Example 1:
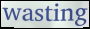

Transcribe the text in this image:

wasting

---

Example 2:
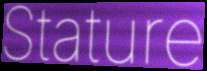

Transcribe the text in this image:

Stature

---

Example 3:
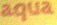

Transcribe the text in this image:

aqua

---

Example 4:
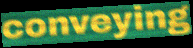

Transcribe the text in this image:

conveying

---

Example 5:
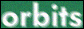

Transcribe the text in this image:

orbits